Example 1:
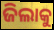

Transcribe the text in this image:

ଜିଲାକୁ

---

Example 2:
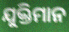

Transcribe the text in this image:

ଯୁକ୍ତିମାନ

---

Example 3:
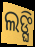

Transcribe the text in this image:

ଲଙ୍ଘି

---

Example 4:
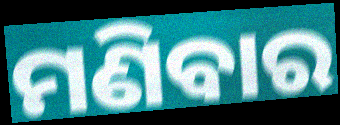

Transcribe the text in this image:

ମଣିବାର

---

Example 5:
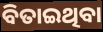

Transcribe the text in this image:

ବିତାଇଥିବା